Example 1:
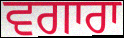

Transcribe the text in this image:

ਵਗਾਰਾ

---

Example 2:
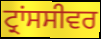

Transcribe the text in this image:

ਟ੍ਰਾਂਸਸੀਵਰ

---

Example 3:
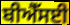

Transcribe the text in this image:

ਬੀਐੱਸਈ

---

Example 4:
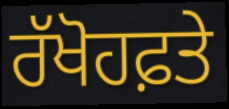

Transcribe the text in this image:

ਰੱਖੋਹਫ਼ਤੇ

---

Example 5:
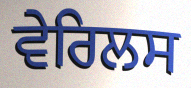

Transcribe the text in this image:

ਵੇਰਿਲਸ